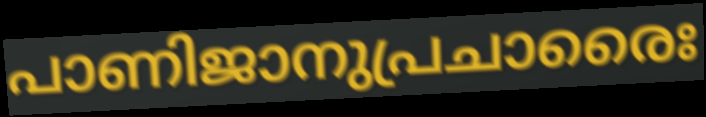
പാണിജാനുപ്രചാരൈഃ